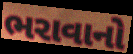
ભરાવાનો